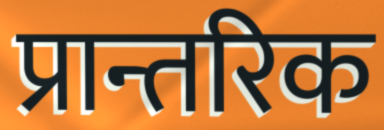
प्रान्तरिक